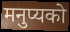
मनुप्यको